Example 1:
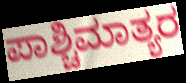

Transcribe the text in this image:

ಪಾಶ್ಚಿಮಾತ್ಯರ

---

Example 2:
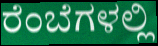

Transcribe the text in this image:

ರೆಂಬೆಗಳಲ್ಲಿ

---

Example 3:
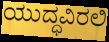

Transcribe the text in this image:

ಯುದ್ಧವಿರಲಿ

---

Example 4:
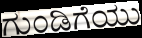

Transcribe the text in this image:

ಗುಂಡಿಗೆಯು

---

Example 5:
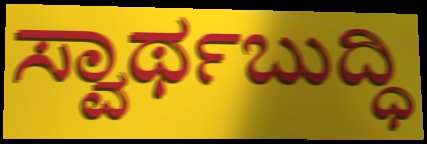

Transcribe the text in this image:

ಸ್ವಾರ್ಥಬುದ್ಧಿ